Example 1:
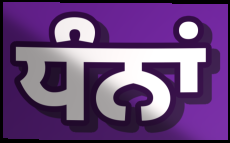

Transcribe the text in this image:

ਧੰਨਾਂ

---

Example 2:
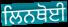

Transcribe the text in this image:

ਲਿਨਥੋਈ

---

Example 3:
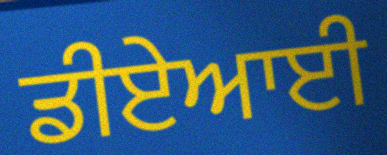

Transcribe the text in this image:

ਡੀਏਆਈ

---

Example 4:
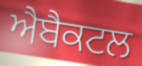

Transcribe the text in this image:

ਐਬੈਕਟਲ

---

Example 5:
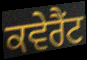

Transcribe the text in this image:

ਕਵੇਰੈਂਟ